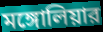
মঙ্গোলিয়ার